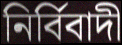
নির্বিবাদী